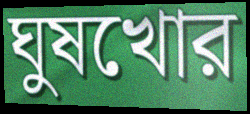
ঘুষখোর